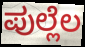
ಪುಲ್ಲೆಲ